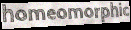
homeomorphic